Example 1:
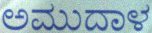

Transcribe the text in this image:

ಅಮುದಾಳ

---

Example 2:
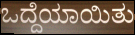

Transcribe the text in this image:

ಒದ್ದೆಯಾಯಿತು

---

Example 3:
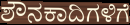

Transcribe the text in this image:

ಶೌನಕಾದಿಗಳಿಗೆ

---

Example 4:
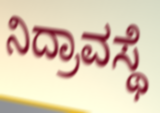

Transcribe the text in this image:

ನಿದ್ರಾವಸ್ಥೆ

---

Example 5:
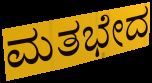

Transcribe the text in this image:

ಮತಭೇದ